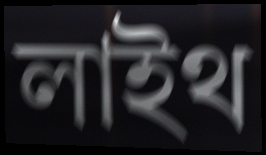
লাইথ